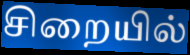
சிறையில்